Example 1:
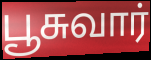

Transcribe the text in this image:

பூசுவார்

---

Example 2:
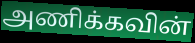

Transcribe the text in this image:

அணிக்கவின்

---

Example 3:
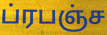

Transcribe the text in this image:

ப்ரபஞ்ச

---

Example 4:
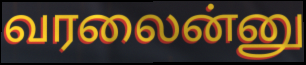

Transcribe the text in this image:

வரலைன்னு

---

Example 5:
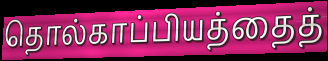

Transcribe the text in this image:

தொல்காப்பியத்தைத்